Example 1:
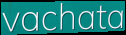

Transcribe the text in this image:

vachata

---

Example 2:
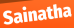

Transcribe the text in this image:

Sainatha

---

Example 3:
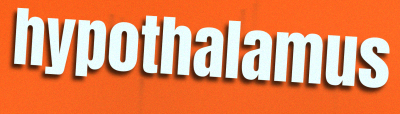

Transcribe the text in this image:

hypothalamus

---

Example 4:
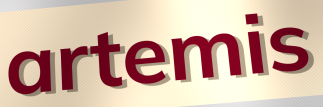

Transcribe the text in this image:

artemis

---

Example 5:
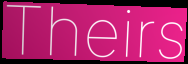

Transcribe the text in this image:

Theirs